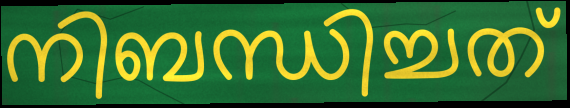
നിബന്ധിച്ചത്